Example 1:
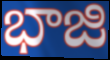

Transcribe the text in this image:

భాజి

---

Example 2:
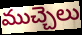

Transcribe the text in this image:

ముచ్చెలు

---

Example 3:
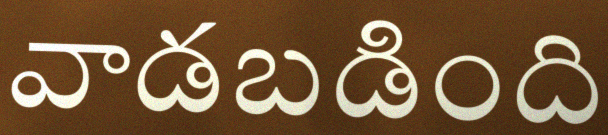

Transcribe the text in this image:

వాడబడింది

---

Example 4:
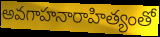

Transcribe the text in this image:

అవగాహనారాహిత్యంతో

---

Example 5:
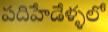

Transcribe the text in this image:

పదిహేడేళ్ళలో